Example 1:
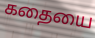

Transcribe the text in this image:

கதையை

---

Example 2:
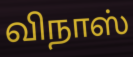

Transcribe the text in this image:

விநாஸ்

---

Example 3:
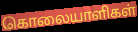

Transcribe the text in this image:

கொலையாளிகள்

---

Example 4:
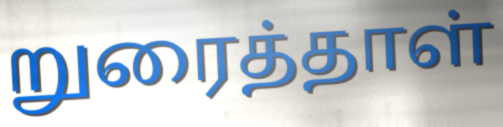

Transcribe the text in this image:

றுரைத்தாள்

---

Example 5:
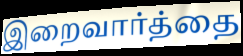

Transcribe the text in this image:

இறைவார்த்தை